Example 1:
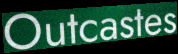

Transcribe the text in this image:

Outcastes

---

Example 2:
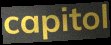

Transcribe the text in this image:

capitol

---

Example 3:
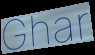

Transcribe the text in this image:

Ghar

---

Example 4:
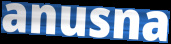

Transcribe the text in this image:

anusna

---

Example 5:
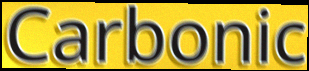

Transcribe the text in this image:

Carbonic